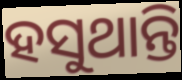
ହସୁଥାନ୍ତି